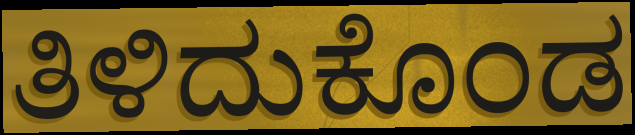
ತಿಳಿದುಕೊಂಡ